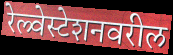
रेल्वेस्टेशनवरील